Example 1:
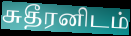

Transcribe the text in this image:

சுதீரனிடம்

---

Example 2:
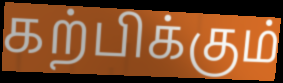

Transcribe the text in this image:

கற்பிக்கும்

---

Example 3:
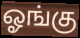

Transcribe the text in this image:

ஓங்கு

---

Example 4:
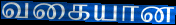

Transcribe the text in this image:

வகையான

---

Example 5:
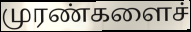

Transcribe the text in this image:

முரண்களைச்